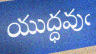
యుద్ధవుఁ